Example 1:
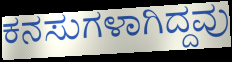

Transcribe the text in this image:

ಕನಸುಗಳಾಗಿದ್ದವು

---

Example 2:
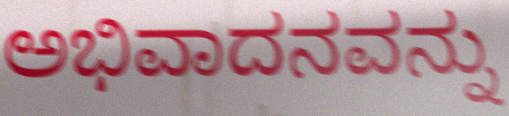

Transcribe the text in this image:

ಅಭಿವಾದನವನ್ನು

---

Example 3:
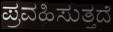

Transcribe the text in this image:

ಪ್ರವಹಿಸುತ್ತದೆ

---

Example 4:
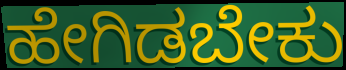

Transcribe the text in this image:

ಹೇಗಿಡಬೇಕು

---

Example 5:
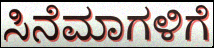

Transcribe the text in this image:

ಸಿನೆಮಾಗಳಿಗೆ